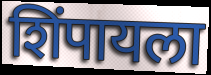
शिंपायला